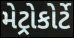
મેટ્રોકોર્ટે